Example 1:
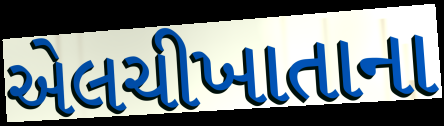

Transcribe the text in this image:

એલચીખાતાના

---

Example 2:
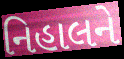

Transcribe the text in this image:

નિહાલને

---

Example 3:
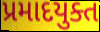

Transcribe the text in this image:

પ્રમાદયુક્ત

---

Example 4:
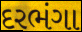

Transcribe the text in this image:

દરભંગા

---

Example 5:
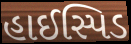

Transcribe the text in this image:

હાઈસ્પિડ